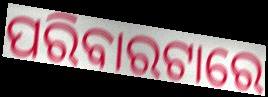
ପରିବାରଟାରେ